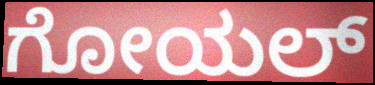
ಗೋಯಲ್